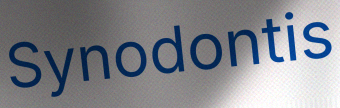
Synodontis